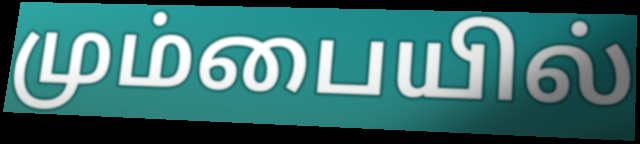
மும்பையில்